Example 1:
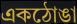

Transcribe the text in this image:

একঠোঙা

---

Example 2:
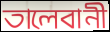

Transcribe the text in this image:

তালেবানী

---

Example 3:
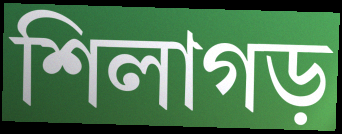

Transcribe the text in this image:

শিলাগড়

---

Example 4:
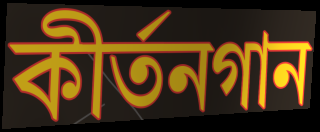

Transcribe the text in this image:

কীর্তনগান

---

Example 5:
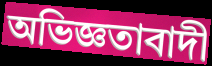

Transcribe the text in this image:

অভিজ্ঞতাবাদী